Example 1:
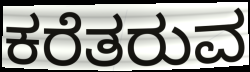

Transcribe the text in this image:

ಕರೆತರುವ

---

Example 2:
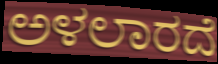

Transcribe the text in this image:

ಅಳಲಾರದೆ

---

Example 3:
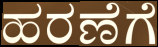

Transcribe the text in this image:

ಹರಣೆಗೆ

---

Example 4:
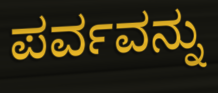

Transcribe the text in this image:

ಪರ್ವವನ್ನು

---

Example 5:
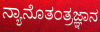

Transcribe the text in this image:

ನ್ಯಾನೊತಂತ್ರಜ್ಞಾನ